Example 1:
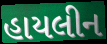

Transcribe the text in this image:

હાયલીન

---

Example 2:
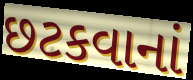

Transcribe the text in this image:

છટકવાનાં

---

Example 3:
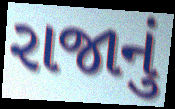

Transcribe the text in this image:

રાજાનું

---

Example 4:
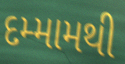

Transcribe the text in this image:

દમ્મામથી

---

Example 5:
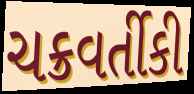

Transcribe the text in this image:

ચક્રવર્તીકી